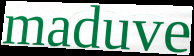
maduve